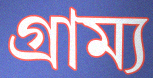
গ্রাম্য